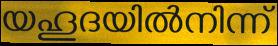
യഹൂദയിൽനിന്ന്